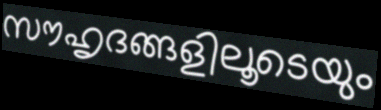
സൗഹൃദങ്ങളിലൂടെയും